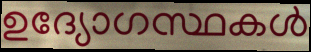
ഉദ്യോഗസ്ഥകൾ